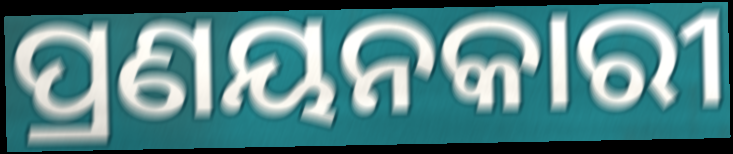
ପ୍ରଣୟନକାରୀ